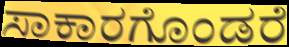
ಸಾಕಾರಗೊಂಡರೆ